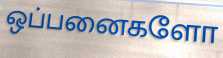
ஒப்பனைகளோ